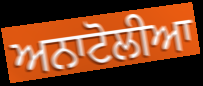
ਅਨਾਟੋਲੀਆ